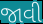
જાવી